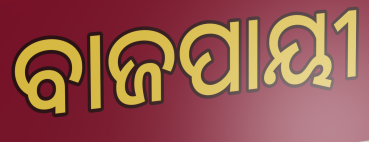
ବାଜପାୟୀ